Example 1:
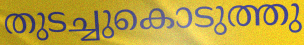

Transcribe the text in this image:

തുടച്ചുകൊടുത്തു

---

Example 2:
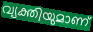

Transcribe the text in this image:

വ്യക്തിയുമാണ്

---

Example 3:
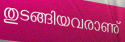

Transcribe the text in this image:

തുടങ്ങിയവരാണു്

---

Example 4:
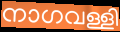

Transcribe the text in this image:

നാഗവള്ളി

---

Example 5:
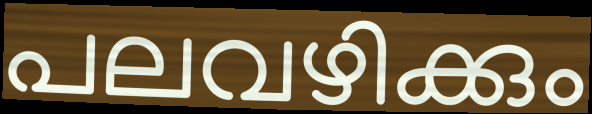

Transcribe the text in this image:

പലവഴിക്കും